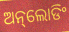
ଅନ୍‌ଲୋଡିଂ